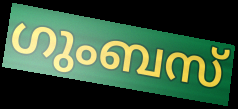
ഗുംബസ്